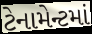
ટેનામેન્ટમાં